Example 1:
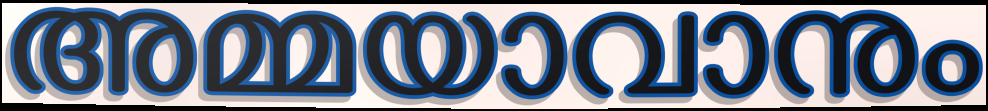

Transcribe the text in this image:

അമ്മയാവാനും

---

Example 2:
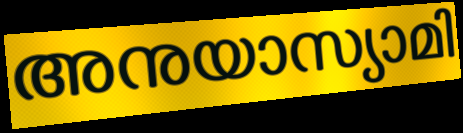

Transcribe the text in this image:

അനുയാസ്യാമി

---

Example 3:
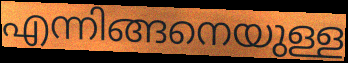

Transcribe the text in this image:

എന്നിങ്ങനെയുള്ള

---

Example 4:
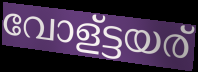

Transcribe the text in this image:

വോള്ട്ടയര്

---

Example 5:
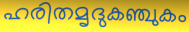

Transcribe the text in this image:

ഹരിതമൃദുകഞ്ചുകം